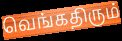
வெங்கதிரும்